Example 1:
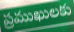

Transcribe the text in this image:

ప్రముఖులకు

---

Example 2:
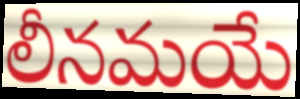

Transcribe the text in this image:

లీనమయే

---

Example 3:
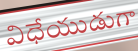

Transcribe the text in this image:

విధేయుడుగా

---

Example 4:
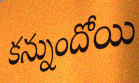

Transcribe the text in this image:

కన్నుందోయి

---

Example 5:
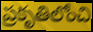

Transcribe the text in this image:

ప్రకృతిలోంచి